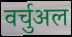
वर्चुअल